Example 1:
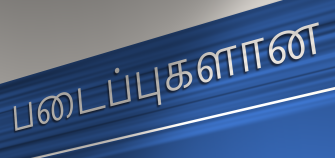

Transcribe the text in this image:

படைப்புகளான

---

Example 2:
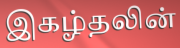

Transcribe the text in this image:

இகழ்தலின்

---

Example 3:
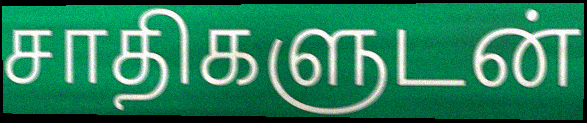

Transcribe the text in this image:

சாதிகளுடன்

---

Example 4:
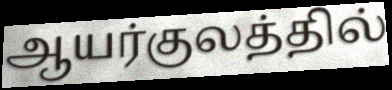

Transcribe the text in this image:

ஆயர்குலத்தில்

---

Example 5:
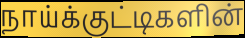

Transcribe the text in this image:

நாய்க்குட்டிகளின்